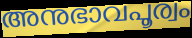
അനുഭാവപൂര്വം